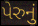
પેરુનું